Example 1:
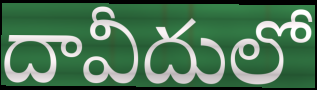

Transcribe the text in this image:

దావీదులో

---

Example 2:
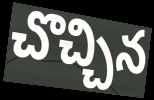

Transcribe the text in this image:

చొచ్చిన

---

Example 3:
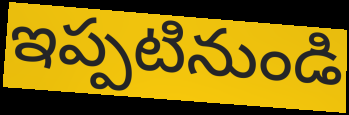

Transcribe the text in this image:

ఇప్పటినుండి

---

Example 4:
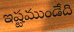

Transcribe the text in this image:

ఇష్టముండేది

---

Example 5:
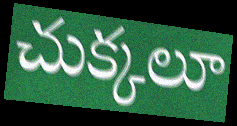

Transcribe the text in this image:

చుక్కలూ